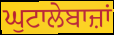
ਘੁਟਾਲੇਬਾਜ਼ਾਂ